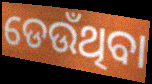
ଡେଉଁଥିବା